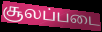
சூலப்படை